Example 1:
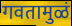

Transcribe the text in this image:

गवतामुळं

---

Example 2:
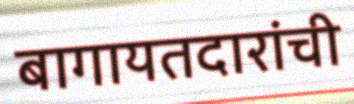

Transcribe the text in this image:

बागायतदारांची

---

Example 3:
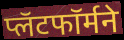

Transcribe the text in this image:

प्लॅटफॉर्मने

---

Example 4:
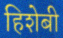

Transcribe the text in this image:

हिशेबी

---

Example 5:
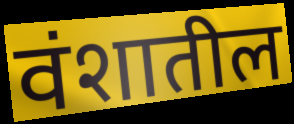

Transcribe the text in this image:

वंशातील